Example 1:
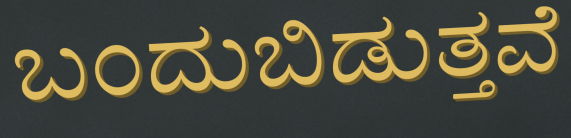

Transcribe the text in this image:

ಬಂದುಬಿಡುತ್ತವೆ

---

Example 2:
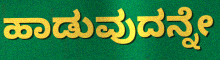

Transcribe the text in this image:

ಹಾಡುವುದನ್ನೇ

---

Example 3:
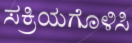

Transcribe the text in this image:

ಸಕ್ರಿಯಗೊಳಿಸಿ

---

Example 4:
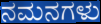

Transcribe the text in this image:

ನಮನಗಳು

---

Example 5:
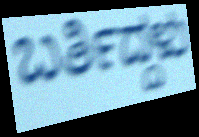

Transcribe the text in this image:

ಬರ್ತಿದ್ದಳು